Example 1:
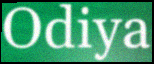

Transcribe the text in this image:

Odiya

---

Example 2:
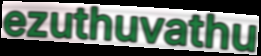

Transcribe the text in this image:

ezuthuvathu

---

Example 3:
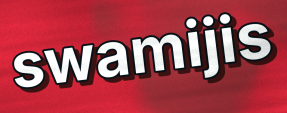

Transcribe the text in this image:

swamijis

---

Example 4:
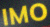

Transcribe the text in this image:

IMO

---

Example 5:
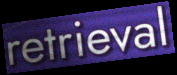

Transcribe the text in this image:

retrieval